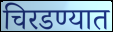
चिरडण्यात